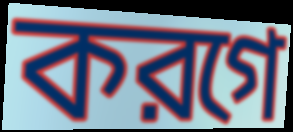
করগে